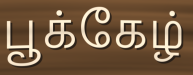
பூக்கேழ்